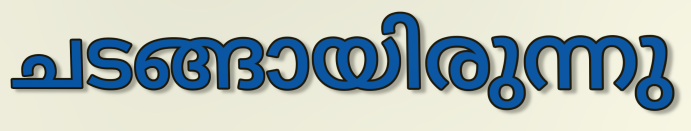
ചടങ്ങായിരുന്നു